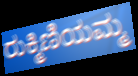
ರುಕ್ಮಿಣಿಯಮ್ಮ